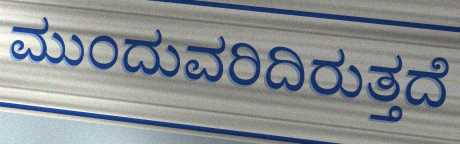
ಮುಂದುವರಿದಿರುತ್ತದೆ